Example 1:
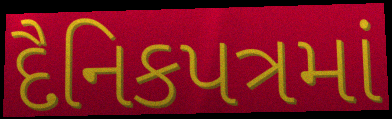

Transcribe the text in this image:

દૈનિકપત્રમાં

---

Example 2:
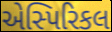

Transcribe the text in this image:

એસ્પિરિકલ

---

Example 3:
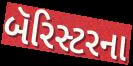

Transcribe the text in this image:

બૅરિસ્ટરના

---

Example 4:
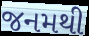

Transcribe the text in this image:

જનમથી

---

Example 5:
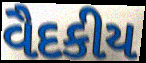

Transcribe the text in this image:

વૈદકીય